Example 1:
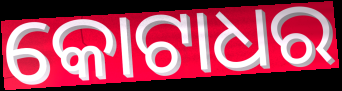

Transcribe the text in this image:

କୋଟାଧର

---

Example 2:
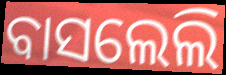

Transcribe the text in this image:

ବାସଲେଲି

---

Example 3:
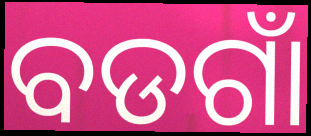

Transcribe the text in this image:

ବଡଗାଁ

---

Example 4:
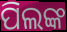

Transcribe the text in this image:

ପିଲଙ୍କ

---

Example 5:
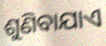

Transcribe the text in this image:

ଶୁଣିବାଯାଏ